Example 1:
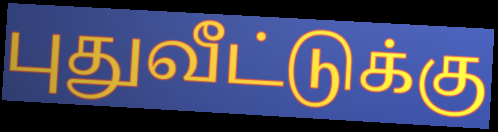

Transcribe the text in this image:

புதுவீட்டுக்கு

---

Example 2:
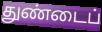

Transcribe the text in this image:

துண்டைப்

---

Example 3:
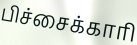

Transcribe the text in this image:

பிச்சைக்காரி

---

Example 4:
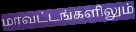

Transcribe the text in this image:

மாவட்டங்களிலும்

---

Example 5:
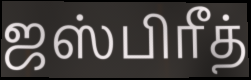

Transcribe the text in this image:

ஜஸ்பிரீத்